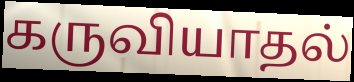
கருவியாதல்